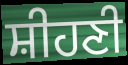
ਸ਼ੀਹਣੀ